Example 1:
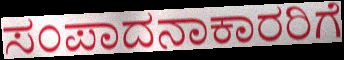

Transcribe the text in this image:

ಸಂಪಾದನಾಕಾರರಿಗೆ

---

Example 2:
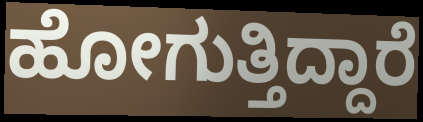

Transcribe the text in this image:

ಹೋಗುತ್ತಿದ್ದಾರೆ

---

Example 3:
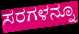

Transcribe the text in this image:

ಸರಗಳನ್ನೂ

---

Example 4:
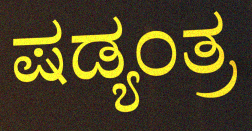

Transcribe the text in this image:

ಷಡ್ಯಂತ್ರ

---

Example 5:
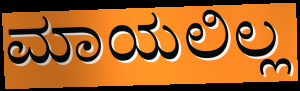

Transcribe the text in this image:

ಮಾಯಲಿಲ್ಲ